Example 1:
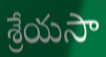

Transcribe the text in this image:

శ్రేయసా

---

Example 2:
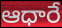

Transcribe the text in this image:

ఆధారే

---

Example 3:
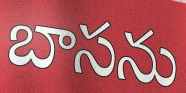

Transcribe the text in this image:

బాసను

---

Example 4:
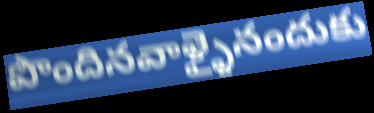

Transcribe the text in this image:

పొందినవాళ్ళైనందుకు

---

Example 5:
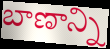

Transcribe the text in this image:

బాణాన్ని